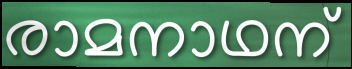
രാമനാഥന്